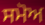
ਸਮੋਅ